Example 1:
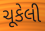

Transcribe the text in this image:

ચૂકેલી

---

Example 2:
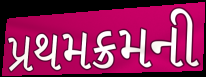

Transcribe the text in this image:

પ્રથમક્રમની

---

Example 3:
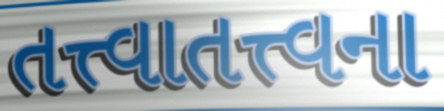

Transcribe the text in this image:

તત્ત્વાતત્ત્વના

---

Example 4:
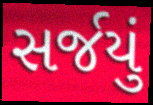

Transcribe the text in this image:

સર્જયું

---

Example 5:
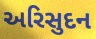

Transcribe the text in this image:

અરિસુદન